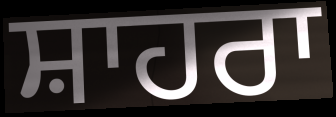
ਸ਼ਾਹਰਾ